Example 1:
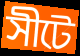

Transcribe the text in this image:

সীটে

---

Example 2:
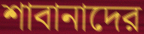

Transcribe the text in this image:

শাবানাদের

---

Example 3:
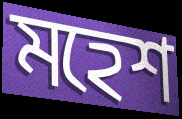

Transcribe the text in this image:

মহেশ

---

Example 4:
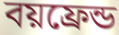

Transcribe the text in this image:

বয়ফ্রেন্ড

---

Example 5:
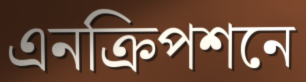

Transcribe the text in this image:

এনক্রিপশনে